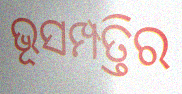
ଭୂସମ୍ପତ୍ତିର